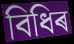
বিধিৰ